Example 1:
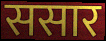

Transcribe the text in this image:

ससार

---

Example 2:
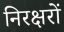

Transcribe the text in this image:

निरक्षरों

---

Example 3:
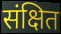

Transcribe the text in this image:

संक्षित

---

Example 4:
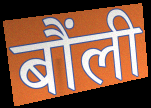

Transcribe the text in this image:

बौंली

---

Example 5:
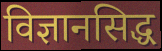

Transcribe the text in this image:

विज्ञानसिद्ध